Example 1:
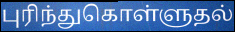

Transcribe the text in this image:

புரிந்துகொள்ளுதல்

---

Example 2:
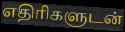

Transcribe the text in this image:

எதிரிகளுடன்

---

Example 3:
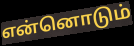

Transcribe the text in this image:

என்னொடும்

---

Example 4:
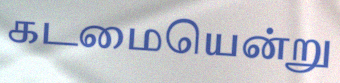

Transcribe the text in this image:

கடமையென்று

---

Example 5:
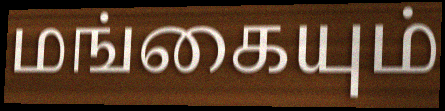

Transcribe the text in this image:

மங்கையும்